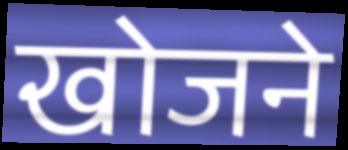
खोजने